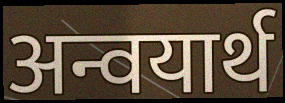
अन्वयार्थ